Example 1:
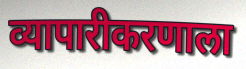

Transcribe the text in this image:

व्यापारीकरणाला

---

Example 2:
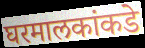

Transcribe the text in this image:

घरमालकांकडे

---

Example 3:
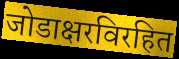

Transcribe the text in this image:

जोडाक्षरविरहित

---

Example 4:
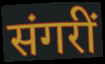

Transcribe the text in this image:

संगरीं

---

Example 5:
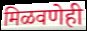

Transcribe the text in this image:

मिळवणेही